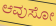
ಆವುಸೋ